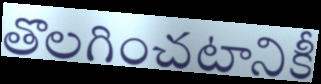
తొలగించటానికీ